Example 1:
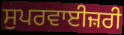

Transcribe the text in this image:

ਸੁਪਰਵਾਈਜ਼ਰੀ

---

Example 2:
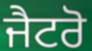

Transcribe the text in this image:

ਜੈਟਰੋ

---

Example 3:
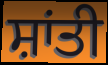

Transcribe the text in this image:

ਸ਼ਾਂਤੀ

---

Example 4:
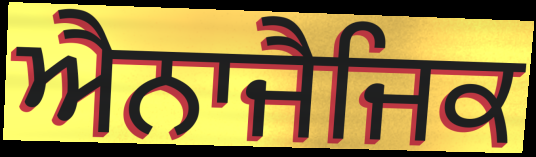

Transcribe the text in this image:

ਐਨਾਜੈਜਿਕ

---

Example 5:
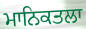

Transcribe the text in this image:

ਮਾਨਿਕਤਲਾ